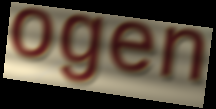
ogen